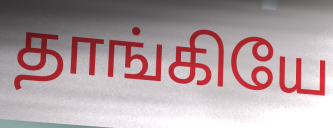
தாங்கியே